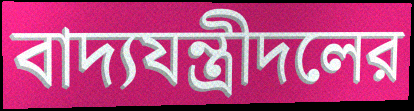
বাদ্যযন্ত্রীদলের